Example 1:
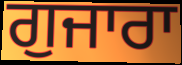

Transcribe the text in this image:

ਗੁਜਾਰਾ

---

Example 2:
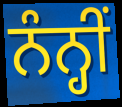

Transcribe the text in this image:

ਨੰਨ੍ਹੀਂ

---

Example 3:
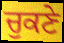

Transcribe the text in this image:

ਚੁਕਣੇ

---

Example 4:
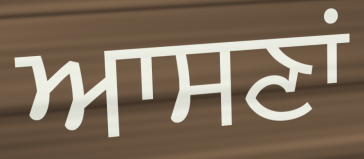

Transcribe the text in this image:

ਆਸਣਾਂ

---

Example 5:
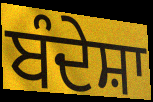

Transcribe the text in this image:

ਬੰਦੇਸ਼ਾ